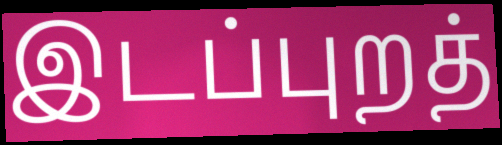
இடப்புறத்